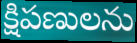
క్షిపణులను